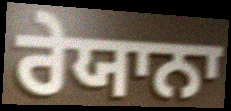
ਰੇਯਾਨਾ